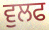
ਵੁਲਫ